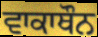
ਵਾਕਾਥੌਨ